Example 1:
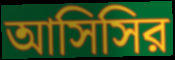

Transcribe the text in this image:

আসিসির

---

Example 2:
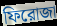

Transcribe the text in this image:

ফিরোজা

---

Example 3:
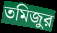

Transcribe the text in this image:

তমিজুর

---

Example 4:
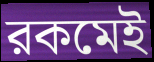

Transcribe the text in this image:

রকমেই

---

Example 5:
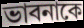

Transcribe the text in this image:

ভাবনাকে